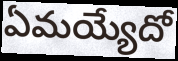
ఏమయ్యేదో